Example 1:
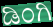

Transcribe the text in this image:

ಡಿಂಗಿ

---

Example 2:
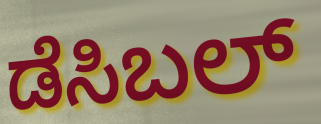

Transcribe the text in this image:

ಡೆಸಿಬಲ್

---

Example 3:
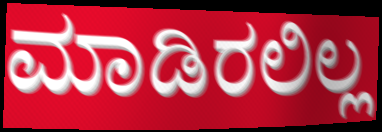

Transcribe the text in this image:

ಮಾಡಿರಲಿಲ್ಲ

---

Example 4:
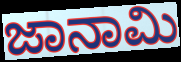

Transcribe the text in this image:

ಜಾನಾಮಿ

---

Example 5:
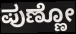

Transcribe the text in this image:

ಪುಣ್ಣೋ